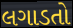
લગાડતો